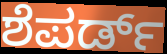
ಶೆಪರ್ಡ್